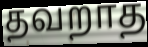
தவறாத